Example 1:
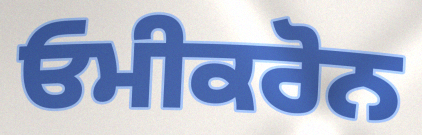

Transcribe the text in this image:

ਓਮੀਕਰੋਨ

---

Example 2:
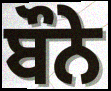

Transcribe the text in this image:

ਬੌਨੇ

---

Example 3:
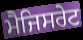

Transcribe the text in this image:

ਮੈਜਿਸਰੇਟ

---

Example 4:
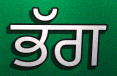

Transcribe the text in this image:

ਭੱਗ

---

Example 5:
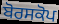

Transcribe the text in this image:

ਬੋਰਸਕੋਪ